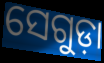
ସେଗୁଡ଼ା